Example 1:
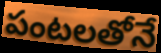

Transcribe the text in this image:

పంటలతోనే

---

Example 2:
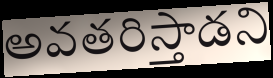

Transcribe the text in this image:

అవతరిస్తాడని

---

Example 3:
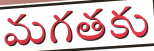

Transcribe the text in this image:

మగతకు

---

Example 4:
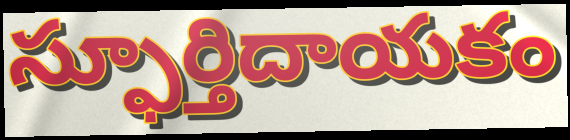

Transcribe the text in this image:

స్ఫూర్తిదాయకం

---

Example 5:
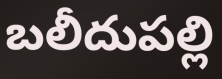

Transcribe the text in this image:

బలీదుపల్లి